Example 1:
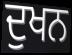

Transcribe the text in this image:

ਦੁਖਨ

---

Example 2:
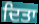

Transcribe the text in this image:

ਦਿਤਾ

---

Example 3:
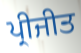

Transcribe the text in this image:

ਪ੍ਰੀਜੀਤ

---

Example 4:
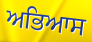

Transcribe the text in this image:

ਅਭਿਆਸ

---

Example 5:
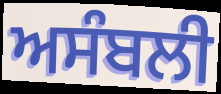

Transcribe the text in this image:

ਅਸੰਬਲੀ